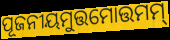
ପୂଜନୀୟମୁତ୍ତମୋତ୍ତମମ୍